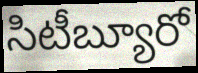
సిటీబ్యూరో